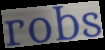
robs